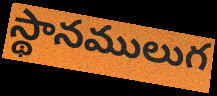
స్థానములుగ